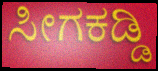
ಸೀಗಕಡ್ಡಿ